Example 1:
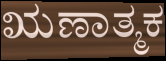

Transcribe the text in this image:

ಋಣಾತ್ಮಕ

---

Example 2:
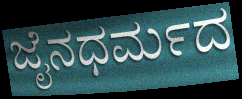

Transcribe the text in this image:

ಜೈನಧರ್ಮದ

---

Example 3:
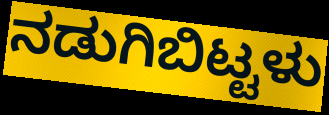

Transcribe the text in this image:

ನಡುಗಿಬಿಟ್ಟಳು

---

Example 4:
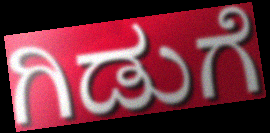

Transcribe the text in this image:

ಗಿಡುಗೆ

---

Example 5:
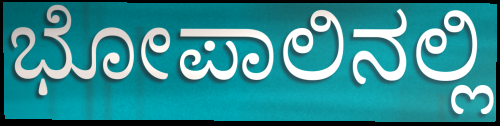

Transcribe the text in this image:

ಭೋಪಾಲಿನಲ್ಲಿ